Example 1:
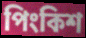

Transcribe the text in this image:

পিংকিশ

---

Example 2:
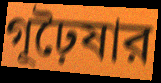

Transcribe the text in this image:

গূঢ়ৈষার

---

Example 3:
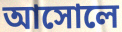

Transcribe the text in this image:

আসোলে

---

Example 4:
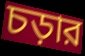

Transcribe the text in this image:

চড়ার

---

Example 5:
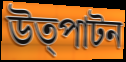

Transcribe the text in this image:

উত্পাটন